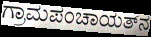
ಗ್ರಾಮಪಂಚಾಯತ್‌ನ